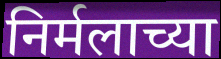
निर्मलाच्या